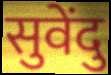
सुवेंदु